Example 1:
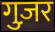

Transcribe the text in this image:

गुज़र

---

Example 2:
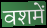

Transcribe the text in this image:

वशमें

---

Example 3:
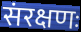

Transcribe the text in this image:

संरक्षणः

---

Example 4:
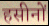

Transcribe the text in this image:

हसीनों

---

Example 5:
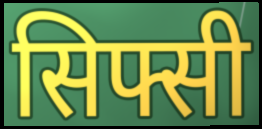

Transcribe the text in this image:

सिफ्सी